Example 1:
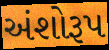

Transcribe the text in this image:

અંશોરૂપ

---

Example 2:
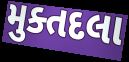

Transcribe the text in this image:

મુક્તદલા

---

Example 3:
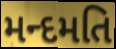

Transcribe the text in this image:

મન્દમતિ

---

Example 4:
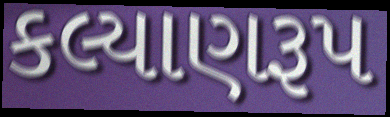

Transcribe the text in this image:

કલ્યાણરૂપ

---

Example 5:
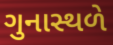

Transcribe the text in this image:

ગુનાસ્થળે